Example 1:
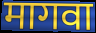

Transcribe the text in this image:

मागवा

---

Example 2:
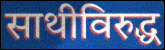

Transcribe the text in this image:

साथीविरुद्ध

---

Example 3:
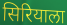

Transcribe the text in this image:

सिरियाला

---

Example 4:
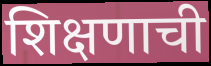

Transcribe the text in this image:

शिक्षणाची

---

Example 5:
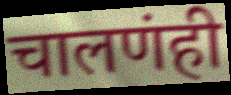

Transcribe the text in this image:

चालणंही